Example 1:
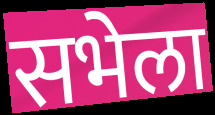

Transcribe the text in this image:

सभेला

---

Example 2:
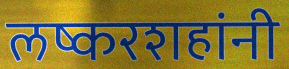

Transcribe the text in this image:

लष्करशहांनी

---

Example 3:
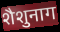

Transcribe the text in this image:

शैशुनाग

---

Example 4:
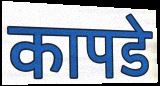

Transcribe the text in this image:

कापडे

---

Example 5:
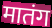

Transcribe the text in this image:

मातंग